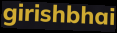
girishbhai